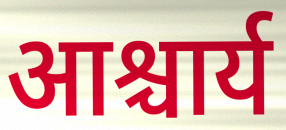
आश्चार्य